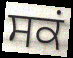
ਸਕਂ